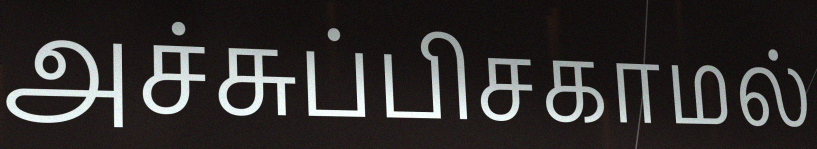
அச்சுப்பிசகாமல்